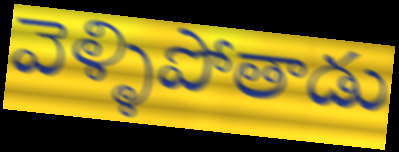
వెళ్ళిపోతాడు